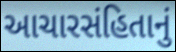
આચારસંહિતાનું